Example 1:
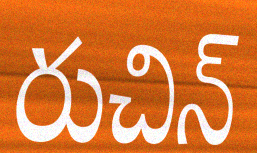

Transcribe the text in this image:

రుచిన్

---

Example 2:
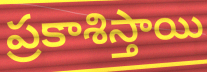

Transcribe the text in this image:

ప్రకాశిస్తాయి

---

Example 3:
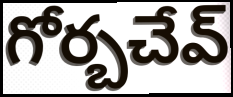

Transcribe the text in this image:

గోర్బచేవ్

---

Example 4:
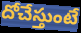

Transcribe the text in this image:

దోచేస్తుంటే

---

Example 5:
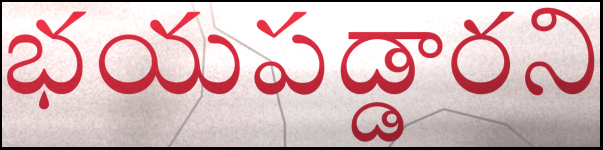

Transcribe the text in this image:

భయపడ్డారని